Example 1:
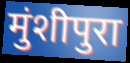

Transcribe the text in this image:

मुंशीपुरा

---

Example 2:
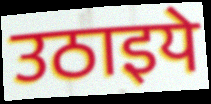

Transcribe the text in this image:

उठाइये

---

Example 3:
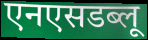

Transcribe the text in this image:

एनएसडब्लू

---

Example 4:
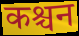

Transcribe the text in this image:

कश्चन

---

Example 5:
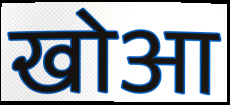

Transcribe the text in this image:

खोआ